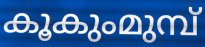
കൂകുംമുമ്പ്